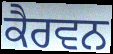
ਕੈਰਵਨ